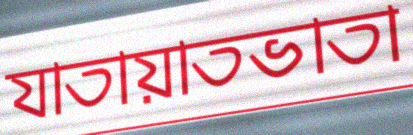
যাতায়াতভাতা